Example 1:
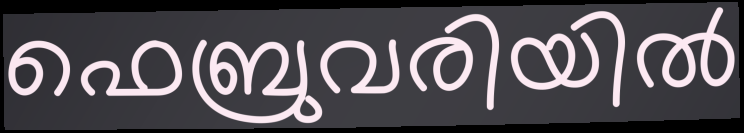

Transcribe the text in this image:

ഫെബ്രുവരിയിൽ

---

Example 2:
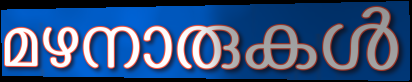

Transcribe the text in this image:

മഴനാരുകൾ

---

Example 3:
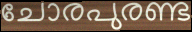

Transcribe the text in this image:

ചോരപുരണ്ട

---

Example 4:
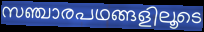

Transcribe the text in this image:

സഞ്ചാരപഥങ്ങളിലൂടെ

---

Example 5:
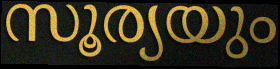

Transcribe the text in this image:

സൂര്യയും